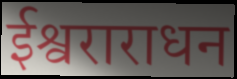
ईश्वराराधन